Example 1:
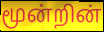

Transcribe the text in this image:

மூன்றின்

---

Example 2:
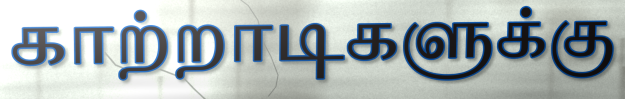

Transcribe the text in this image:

காற்றாடிகளுக்கு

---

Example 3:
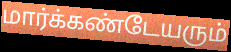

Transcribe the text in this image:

மார்க்கண்டேயரும்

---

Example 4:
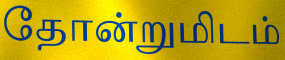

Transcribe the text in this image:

தோன்றுமிடம்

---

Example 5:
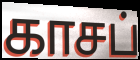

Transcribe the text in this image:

காசப்